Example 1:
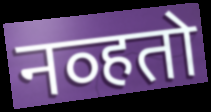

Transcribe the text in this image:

नव्हतो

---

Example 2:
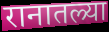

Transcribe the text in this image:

रानातल्या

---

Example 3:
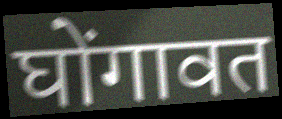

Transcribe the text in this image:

घोंगावत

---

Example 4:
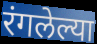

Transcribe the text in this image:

रंगलेल्या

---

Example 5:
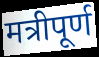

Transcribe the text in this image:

मत्रीपूर्ण